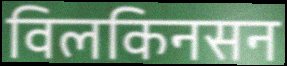
विलकिनसन